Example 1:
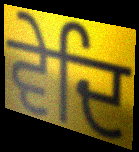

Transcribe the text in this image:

ਵੇਦਿ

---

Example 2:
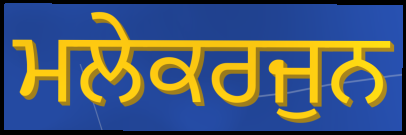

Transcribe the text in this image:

ਮਲੇਕਰਜੁਨ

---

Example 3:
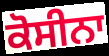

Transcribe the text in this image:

ਕੋਸੀਨਾ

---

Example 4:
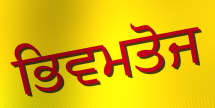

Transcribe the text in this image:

ਭਿਵਮਤੋਜ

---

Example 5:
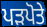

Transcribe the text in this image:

ਪੜਪੋਤੇ